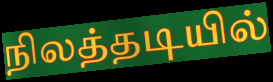
நிலத்தடியில்